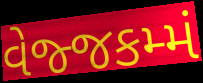
વેજ્જકમ્મં